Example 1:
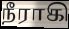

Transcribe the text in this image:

நீராகி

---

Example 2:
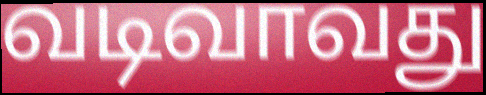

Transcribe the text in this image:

வடிவாவது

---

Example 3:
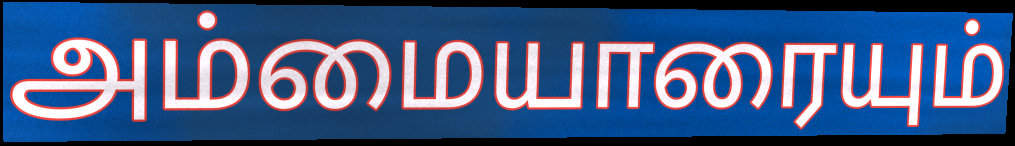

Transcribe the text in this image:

அம்மையாரையும்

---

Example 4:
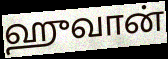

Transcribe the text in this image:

ஹுவான்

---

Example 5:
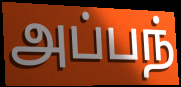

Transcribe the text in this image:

அப்பந்